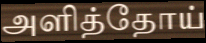
அளித்தோய்